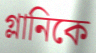
গ্লানিকে